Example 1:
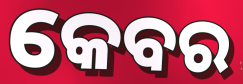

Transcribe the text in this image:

କେବର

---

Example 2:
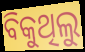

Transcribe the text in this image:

ବିକୁଥିଲୁ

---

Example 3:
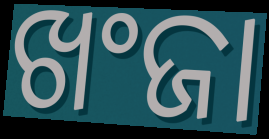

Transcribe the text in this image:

ଖଂଜା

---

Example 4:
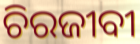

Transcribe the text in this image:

ଚିରଜୀବୀ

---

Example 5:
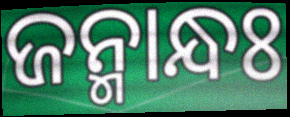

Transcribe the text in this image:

ଜନ୍ମାନ୍ଧଃ